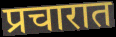
प्रचारात